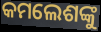
କମଲେଶଙ୍କୁ